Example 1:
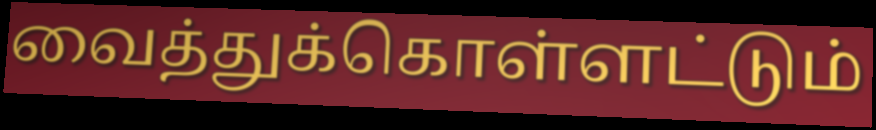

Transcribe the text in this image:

வைத்துக்கொள்ளட்டும்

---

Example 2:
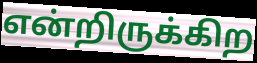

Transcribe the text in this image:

என்றிருக்கிற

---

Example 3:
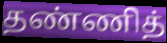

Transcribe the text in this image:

தண்ணித்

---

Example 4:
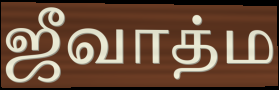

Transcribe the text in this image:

ஜீவாத்ம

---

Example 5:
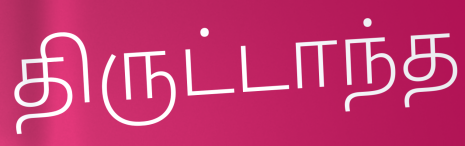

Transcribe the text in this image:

திருட்டாந்த